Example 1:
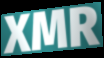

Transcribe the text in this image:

XMR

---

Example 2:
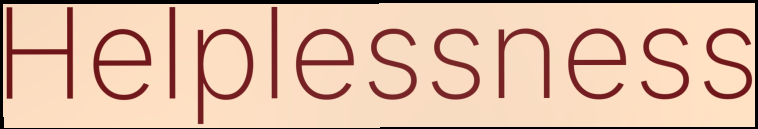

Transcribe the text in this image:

Helplessness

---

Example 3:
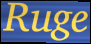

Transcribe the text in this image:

Ruge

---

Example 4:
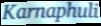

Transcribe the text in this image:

Karnaphuli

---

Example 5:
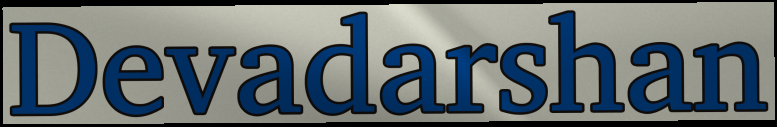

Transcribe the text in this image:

Devadarshan